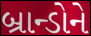
બ્રાન્ડોને